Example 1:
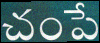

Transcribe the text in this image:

చంపే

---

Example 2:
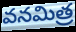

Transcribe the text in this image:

వనమిత్ర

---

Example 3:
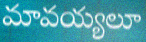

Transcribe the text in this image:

మావయ్యలూ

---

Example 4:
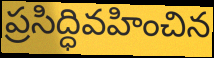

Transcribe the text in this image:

ప్రసిద్ధివహించిన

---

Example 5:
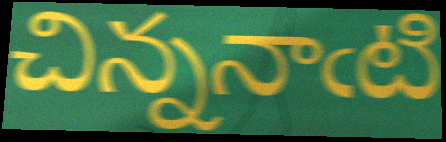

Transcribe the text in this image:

చిన్ననాఁటి